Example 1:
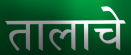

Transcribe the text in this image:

तालाचे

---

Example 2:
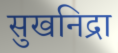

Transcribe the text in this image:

सुखनिद्रा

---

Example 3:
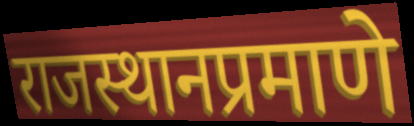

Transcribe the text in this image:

राजस्थानप्रमाणे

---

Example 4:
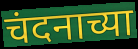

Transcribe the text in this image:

चंदनाच्या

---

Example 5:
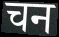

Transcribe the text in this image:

चन